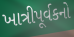
ખાત્રીપૂર્વકનો